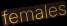
females